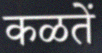
कळतें